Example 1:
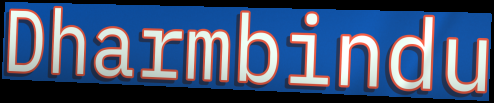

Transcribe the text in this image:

Dharmbindu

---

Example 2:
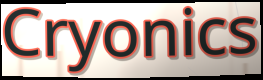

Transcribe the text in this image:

Cryonics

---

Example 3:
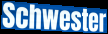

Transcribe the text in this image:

Schwester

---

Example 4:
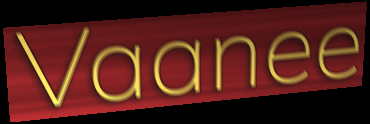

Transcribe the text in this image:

Vaanee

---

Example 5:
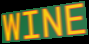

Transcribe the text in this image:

WINE